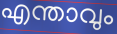
എന്താവും